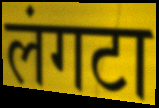
लंगटा